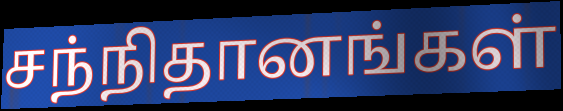
சந்நிதானங்கள்